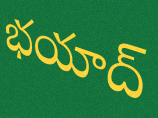
భయాద్